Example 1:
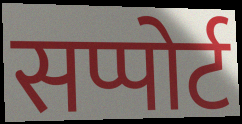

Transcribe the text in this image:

सप्पोर्ट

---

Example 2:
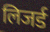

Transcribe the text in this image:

लिजर्ड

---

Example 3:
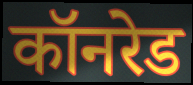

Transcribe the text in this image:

कॉनरेड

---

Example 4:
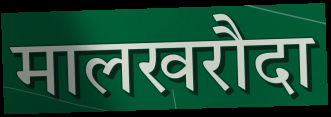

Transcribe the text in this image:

मालखरौदा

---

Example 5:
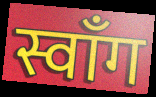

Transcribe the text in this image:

स्वाँग